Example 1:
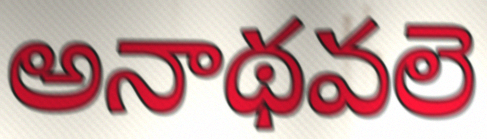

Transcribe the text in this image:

అనాథవలె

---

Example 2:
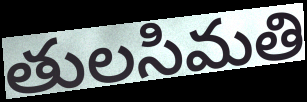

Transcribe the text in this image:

తులసిమతి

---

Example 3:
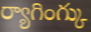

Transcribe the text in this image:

ర్యాగింగ్కు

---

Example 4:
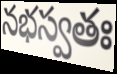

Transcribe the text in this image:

నభస్వతః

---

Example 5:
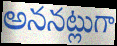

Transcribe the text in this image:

అననట్లుగా